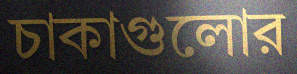
চাকাগুলোর